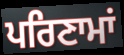
ਪਰਿਣਾਮਾਂ